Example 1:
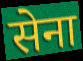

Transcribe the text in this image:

सेना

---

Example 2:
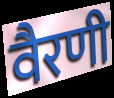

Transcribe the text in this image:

वैरणी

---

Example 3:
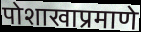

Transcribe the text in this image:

पोशाखाप्रमाणे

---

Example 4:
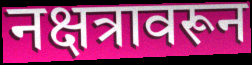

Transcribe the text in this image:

नक्षत्रावरून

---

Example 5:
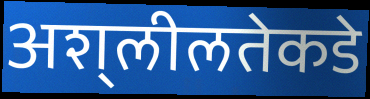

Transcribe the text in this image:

अश्लीलतेकडे